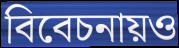
বিবেচনায়ও